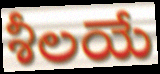
శీలయే